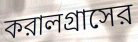
করালগ্রাসের